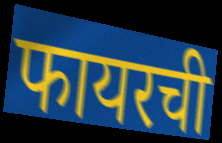
फायरची